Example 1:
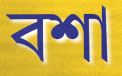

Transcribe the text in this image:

বশা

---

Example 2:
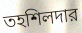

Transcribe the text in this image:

তহশিলদার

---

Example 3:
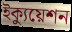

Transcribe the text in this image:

ইক্যুয়েশন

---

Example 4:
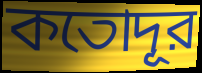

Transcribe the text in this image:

কতোদূর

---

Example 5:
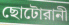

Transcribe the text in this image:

ছোটোরানী